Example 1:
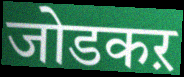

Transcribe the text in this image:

जोडकऱ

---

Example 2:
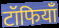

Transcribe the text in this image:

टॉफियाँ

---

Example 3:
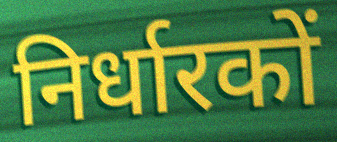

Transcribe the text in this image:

निर्धारकों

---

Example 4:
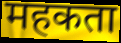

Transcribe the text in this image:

महकता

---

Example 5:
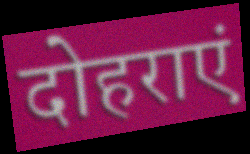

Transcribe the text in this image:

दोहराएं